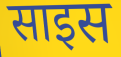
साइस